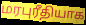
மரபுரீதியாக